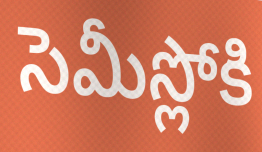
సెమీస్లోకి